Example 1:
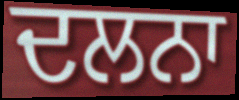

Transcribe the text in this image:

ਦਲਨਾ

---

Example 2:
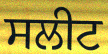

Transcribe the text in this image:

ਸਲੀਟ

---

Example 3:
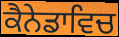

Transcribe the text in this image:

ਕੈਨੇਡਾਵਿਚ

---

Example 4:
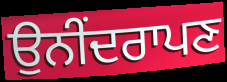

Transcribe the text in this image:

ਉਨੀਂਦਰਾਪਣ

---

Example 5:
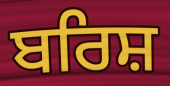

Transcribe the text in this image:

ਬਰਿਸ਼